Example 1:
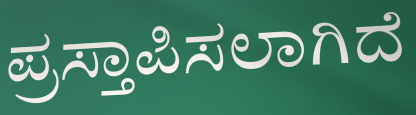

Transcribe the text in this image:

ಪ್ರಸ್ತಾಪಿಸಲಾಗಿದೆ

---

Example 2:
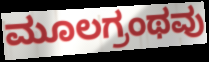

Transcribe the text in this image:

ಮೂಲಗ್ರಂಥವು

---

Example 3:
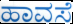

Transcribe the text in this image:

ಹಾವಸೆ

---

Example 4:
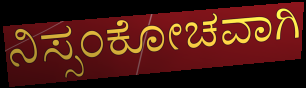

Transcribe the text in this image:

ನಿಸ್ಸಂಕೋಚವಾಗಿ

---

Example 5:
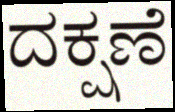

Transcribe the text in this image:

ದಕ್ಷಣೆ